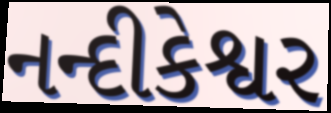
નન્દીકેશ્વર